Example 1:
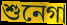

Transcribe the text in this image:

শুনেগা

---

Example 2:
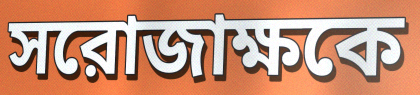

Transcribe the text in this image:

সরোজাক্ষকে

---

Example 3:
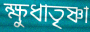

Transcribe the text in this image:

ক্ষুধাতৃষ্ণা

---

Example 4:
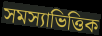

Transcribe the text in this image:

সমস্যাভিত্তিক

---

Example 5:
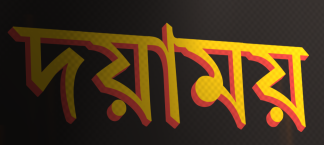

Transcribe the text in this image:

দয়াময়